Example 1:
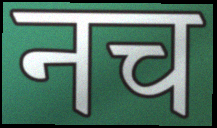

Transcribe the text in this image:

नच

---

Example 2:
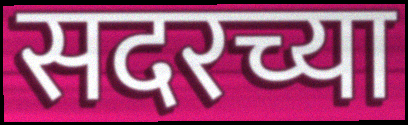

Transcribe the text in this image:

सदरच्या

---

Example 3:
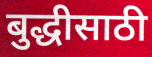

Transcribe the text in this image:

बुद्धीसाठी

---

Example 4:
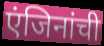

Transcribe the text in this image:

एंजिनांची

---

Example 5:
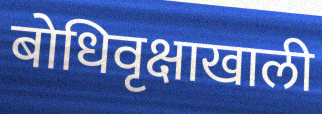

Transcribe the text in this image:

बोधिवृक्षाखाली